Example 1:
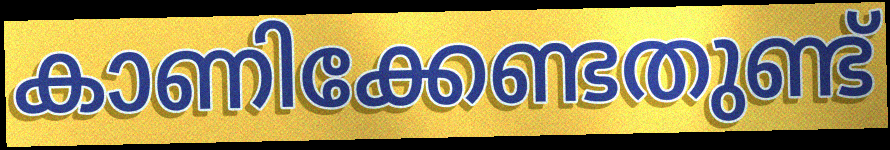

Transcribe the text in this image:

കാണിക്കേണ്ടതുണ്ട്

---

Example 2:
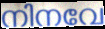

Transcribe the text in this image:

നിനവേ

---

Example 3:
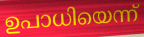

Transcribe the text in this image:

ഉപാധിയെന്ന്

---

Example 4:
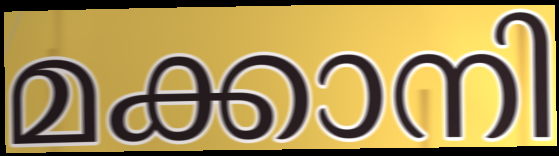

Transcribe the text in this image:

മക്കാനി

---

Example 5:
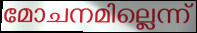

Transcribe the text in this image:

മോചനമില്ലെന്ന്